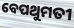
ବେପଥୁମତୀ